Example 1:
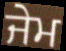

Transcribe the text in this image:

ਜੇਮ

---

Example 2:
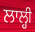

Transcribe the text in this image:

ਲਾਲ੍ਹੀ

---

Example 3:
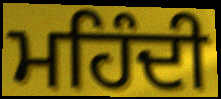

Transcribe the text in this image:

ਮਹਿੰਦੀ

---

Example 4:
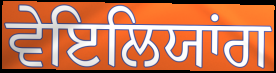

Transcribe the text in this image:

ਵੇਇਲਿਯਾਂਗ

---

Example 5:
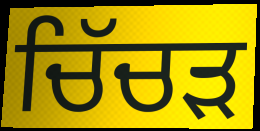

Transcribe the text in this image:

ਚਿੱਚੜ